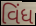
વિંધ